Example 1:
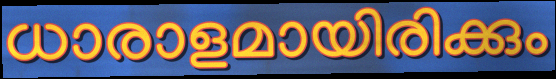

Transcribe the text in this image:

ധാരാളമായിരിക്കും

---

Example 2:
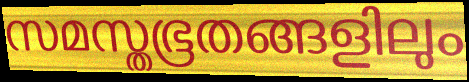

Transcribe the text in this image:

സമസ്തഭൂതങ്ങളിലും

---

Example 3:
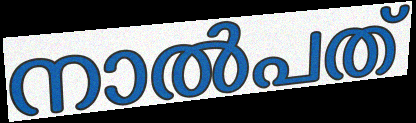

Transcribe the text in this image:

നാൽപത്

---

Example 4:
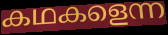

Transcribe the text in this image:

കഥകളെന്ന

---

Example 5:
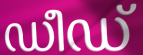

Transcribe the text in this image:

ഡീഡ്